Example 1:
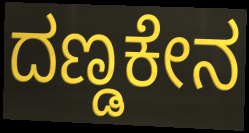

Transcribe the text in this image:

ದಣ್ಡಕೇನ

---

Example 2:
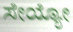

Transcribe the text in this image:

ಸೇಯ್ಯೋ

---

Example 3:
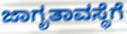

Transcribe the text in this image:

ಜಾಗೃತಾವಸ್ಥೆಗೆ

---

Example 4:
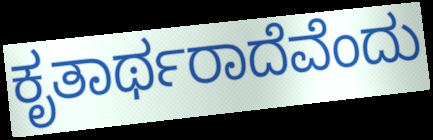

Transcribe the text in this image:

ಕೃತಾರ್ಥರಾದೆವೆಂದು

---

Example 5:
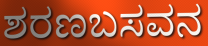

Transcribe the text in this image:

ಶರಣಬಸವನ